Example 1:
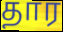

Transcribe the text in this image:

தார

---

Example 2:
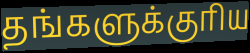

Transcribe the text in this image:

தங்களுக்குரிய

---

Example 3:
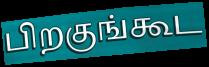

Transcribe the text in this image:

பிறகுங்கூட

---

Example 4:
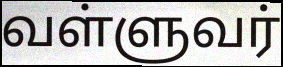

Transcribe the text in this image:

வள்ளுவர்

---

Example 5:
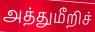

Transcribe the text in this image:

அத்துமீறிச்